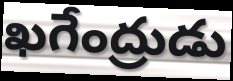
ఖగేంద్రుడు